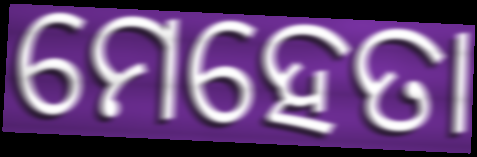
ମେହେତା